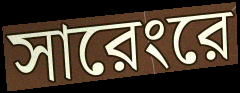
সারেংরে